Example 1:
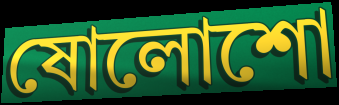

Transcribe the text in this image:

ষোলোশো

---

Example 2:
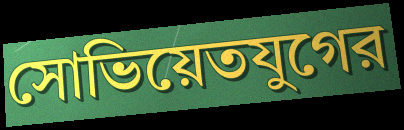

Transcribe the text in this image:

সোভিয়েতযুগের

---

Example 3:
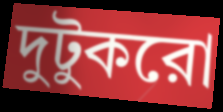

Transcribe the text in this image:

দুটুকরো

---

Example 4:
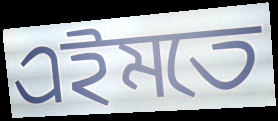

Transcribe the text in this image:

এইমতে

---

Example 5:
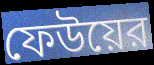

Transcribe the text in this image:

ফেউয়ের